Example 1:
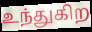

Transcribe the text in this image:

உந்துகிற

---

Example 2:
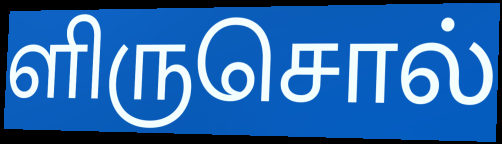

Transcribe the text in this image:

ளிருசொல்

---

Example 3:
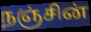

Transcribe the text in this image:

நஞ்சின்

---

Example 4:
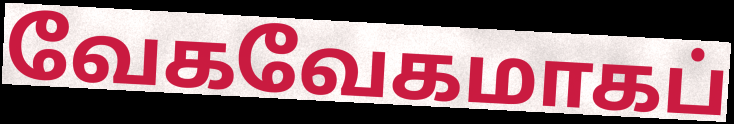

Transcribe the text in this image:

வேகவேகமாகப்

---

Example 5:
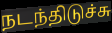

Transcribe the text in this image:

நடந்திடுச்சு